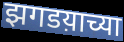
झगडय़ाच्या